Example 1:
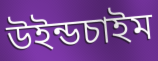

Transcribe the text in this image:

উইন্ডচাইম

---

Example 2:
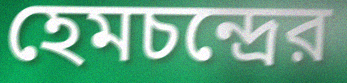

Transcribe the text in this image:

হেমচন্দ্রের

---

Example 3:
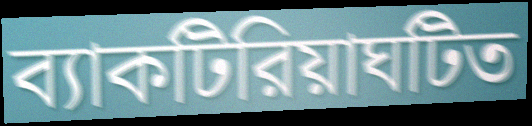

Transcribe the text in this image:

ব্যাকটিরিয়াঘটিত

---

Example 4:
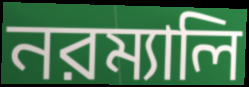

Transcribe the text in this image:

নরম্যালি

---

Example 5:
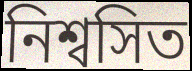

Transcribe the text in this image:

নিশ্বসিত